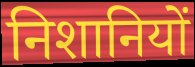
निशानियों